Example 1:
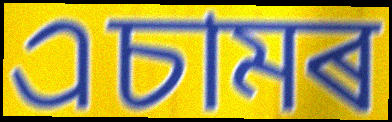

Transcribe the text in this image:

এচামৰ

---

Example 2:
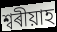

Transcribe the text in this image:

শ্বৰীয়াহ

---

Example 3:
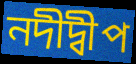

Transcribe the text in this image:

নদীদ্বীপ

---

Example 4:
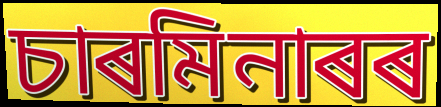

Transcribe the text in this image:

চাৰমিনাৰৰ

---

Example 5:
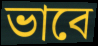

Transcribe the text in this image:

ভাবে